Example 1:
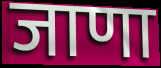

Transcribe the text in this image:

जाणा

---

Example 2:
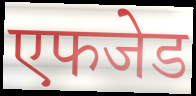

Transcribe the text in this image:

एफजेड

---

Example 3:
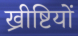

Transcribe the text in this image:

ख्रीष्टियों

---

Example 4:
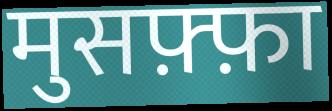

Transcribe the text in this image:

मुसफ़्फ़ा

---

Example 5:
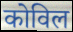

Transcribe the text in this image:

कोविल